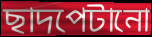
ছাদপেটানো